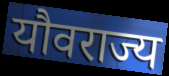
यौवराज्य